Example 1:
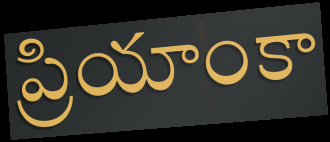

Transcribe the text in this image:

ప్రియాంకా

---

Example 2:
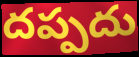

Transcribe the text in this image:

దప్పదు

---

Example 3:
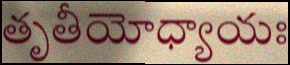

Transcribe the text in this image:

తృతీయోధ్యాయః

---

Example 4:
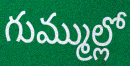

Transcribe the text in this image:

గుమ్ముల్లో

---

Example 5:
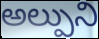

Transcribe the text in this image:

అల్పుని